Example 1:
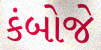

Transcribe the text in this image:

કંબોજે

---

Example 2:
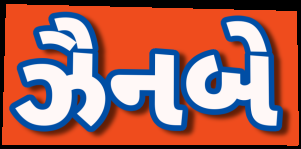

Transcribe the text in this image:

ઝૈનબે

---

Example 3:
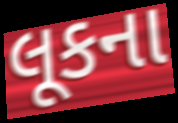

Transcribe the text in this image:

લૂકના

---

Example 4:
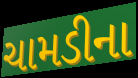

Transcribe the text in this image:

ચામડીના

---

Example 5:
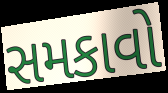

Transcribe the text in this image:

સમકાવો